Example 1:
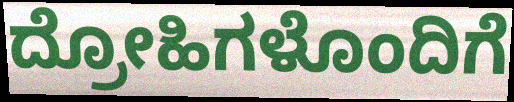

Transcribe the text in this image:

ದ್ರೋಹಿಗಳೊಂದಿಗೆ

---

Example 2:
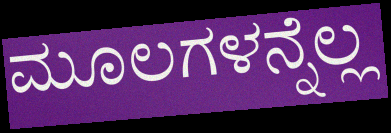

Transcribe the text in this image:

ಮೂಲಗಳನ್ನೆಲ್ಲ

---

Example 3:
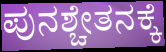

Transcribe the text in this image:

ಪುನಶ್ಚೇತನಕ್ಕೆ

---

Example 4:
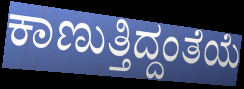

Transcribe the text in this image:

ಕಾಣುತ್ತಿದ್ದಂತೆಯೆ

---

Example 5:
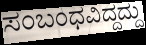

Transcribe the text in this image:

ಸಂಬಂಧವಿದ್ದದ್ದು